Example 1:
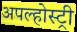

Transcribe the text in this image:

अपल्होस्ट्री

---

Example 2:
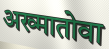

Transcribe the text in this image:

अख्मातोवा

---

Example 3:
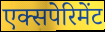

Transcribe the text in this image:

एक्सपेरिमेंट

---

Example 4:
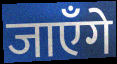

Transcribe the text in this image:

जाएँगे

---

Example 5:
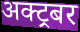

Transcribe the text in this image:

अक्ट्रबर